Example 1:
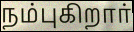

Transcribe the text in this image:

நம்புகிறார்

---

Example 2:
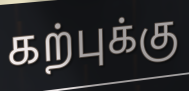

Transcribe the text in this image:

கற்புக்கு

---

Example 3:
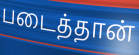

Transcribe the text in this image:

படைத்தான்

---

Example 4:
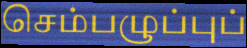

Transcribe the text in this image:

செம்பழுப்புப்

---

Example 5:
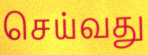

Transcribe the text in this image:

செய்வது